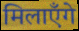
मिलाएँगे